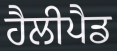
ਹੈਲੀਪੈਡ